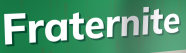
Fraternite